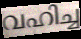
വഹിച്ച